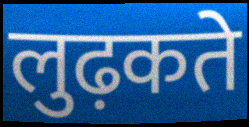
लुढ़कते